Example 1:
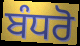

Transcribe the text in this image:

ਬੰਧਰੋ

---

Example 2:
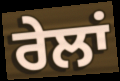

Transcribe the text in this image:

ਰੇਲਾਂ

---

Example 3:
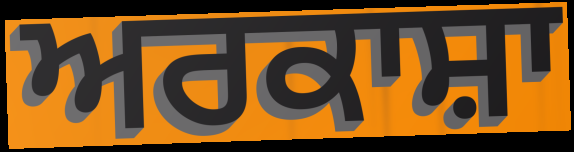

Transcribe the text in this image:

ਅਰਕਾਸ਼ਾ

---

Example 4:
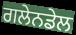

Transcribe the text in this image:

ਗਲੇਨਡੇਲ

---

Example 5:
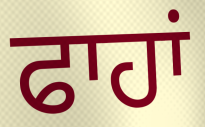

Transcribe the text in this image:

ਫਾਹਾਂ